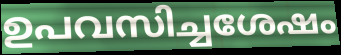
ഉപവസിച്ചശേഷം